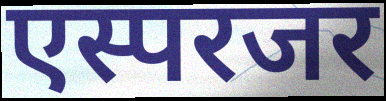
एस्परजर